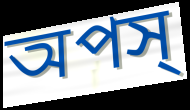
অপস্